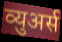
व्युअर्स